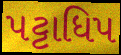
પટ્ટાધિપ